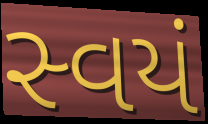
સ્વયં